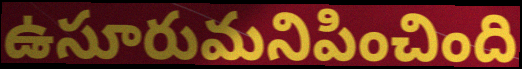
ఉసూరుమనిపించింది